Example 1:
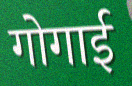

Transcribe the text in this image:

गोगाई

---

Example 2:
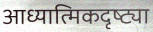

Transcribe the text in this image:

आध्यात्मिकदृष्ट्या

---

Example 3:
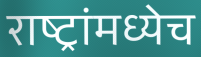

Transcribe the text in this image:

राष्ट्रांमध्येच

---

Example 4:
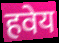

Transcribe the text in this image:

हवेय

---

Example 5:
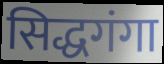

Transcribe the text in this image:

सिद्धगंगा